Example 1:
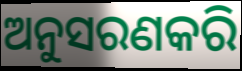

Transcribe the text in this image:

ଅନୁସରଣକରି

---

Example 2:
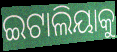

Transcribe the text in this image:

ଇଟାଲିୟାକୁ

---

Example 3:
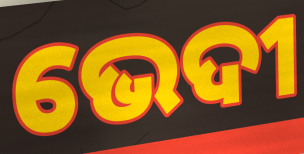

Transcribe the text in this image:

ଭେଦୀ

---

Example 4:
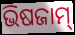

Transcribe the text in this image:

ଭିଷଜାମ୍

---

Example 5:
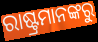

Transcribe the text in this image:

ରାଷ୍ଟ୍ରମାନଙ୍କରୁ